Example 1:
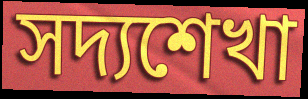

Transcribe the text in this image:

সদ্যশেখা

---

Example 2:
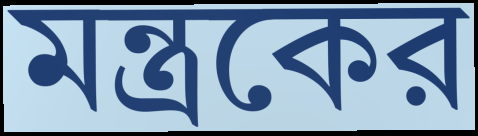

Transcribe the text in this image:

মন্ত্রকের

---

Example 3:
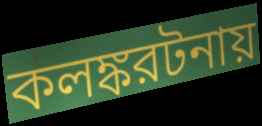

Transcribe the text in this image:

কলঙ্করটনায়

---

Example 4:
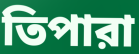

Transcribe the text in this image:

তিপারা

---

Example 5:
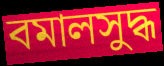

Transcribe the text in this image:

বমালসুদ্ধ